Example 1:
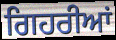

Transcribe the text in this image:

ਗਿਹਰੀਆਂ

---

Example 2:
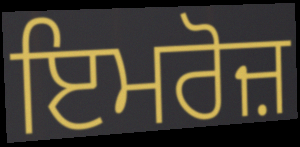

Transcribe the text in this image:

ਇਮਰੋਜ਼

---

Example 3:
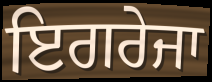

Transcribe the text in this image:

ਇਗਰੇਜਾ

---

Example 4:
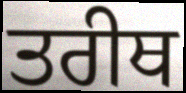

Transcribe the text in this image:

ਤਰੀਥ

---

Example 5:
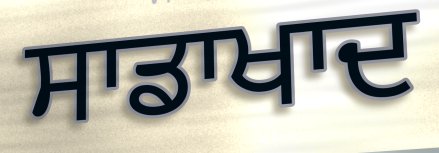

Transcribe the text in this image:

ਸਾਡਾਖਾਦ